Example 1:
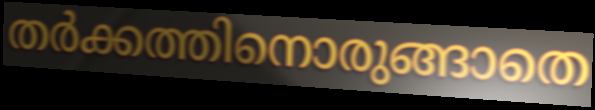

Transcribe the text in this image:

തർക്കത്തിനൊരുങ്ങാതെ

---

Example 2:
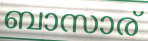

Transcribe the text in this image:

ബാസാര്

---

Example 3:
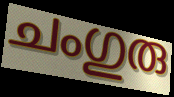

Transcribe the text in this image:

ചംഗുരു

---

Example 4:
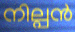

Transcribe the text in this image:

നില്പൻ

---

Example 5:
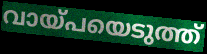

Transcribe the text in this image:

വായ്പയെടുത്ത്